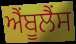
ਐਂਬੂਲੈਂਸ